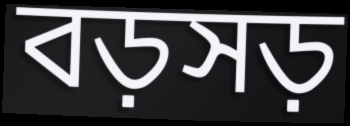
বড়সড়